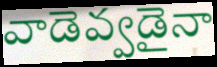
వాడెవ్వడైనా